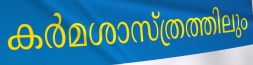
കർമശാസ്ത്രത്തിലും